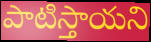
పాటిస్తాయని